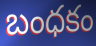
బంధకం